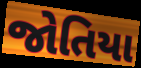
જોતિયા